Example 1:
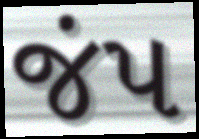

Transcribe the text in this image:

જંપ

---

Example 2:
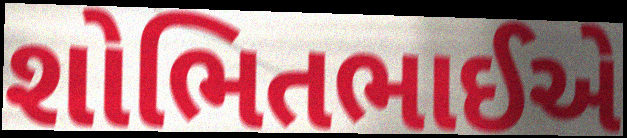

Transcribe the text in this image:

શોભિતભાઈએ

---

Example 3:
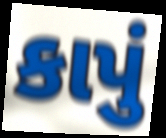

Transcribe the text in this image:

કાપું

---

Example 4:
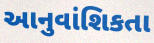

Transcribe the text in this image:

આનુવાંશિકતા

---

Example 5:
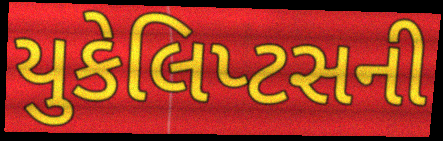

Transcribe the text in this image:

યુકેલિપ્ટસની